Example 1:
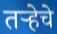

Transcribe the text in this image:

तर्‍हेचे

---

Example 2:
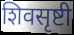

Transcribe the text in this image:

शिवसृष्टी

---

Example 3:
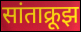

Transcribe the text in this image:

सांताक्रूझ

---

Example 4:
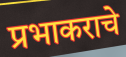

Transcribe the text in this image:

प्रभाकराचे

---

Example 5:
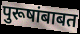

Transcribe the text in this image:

पुरूषांबाबत